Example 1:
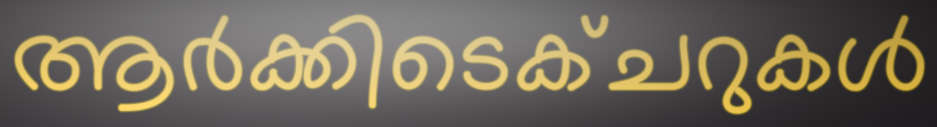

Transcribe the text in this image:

ആർക്കിടെക്ചറുകൾ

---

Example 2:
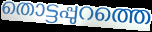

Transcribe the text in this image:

തൊട്ടപ്പുറത്തെ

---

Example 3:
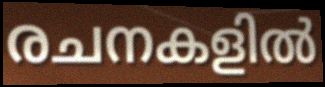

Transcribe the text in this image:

രചനകളിൽ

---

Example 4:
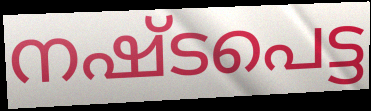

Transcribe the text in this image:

നഷ്ടപെട്ട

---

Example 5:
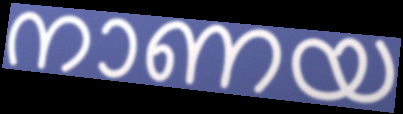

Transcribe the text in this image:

നാണയ